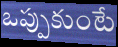
ఒప్పుకుంటే